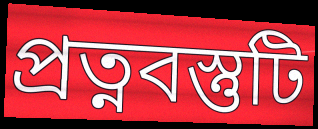
প্রত্নবস্তুটি